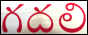
గదలి